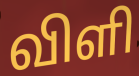
விளி